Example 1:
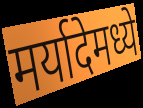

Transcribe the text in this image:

मर्यादेमध्ये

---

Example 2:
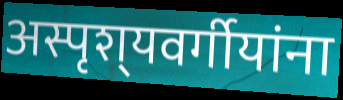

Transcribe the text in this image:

अस्पृश्यवर्गीयांना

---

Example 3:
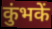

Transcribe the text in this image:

कुंभकें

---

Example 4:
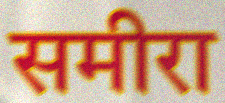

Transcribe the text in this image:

समीरा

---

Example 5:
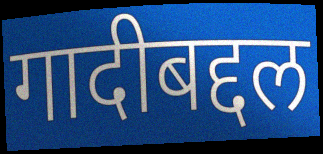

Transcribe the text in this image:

गादीबद्दल